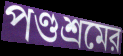
পণ্ডশ্রমের